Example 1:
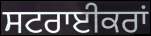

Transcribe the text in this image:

ਸਟਰਾਈਕਰਾਂ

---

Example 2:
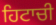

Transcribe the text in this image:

ਹਿਟਾਚੀ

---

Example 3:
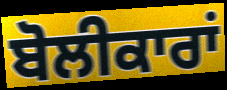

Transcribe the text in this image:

ਬੋਲੀਕਾਰਾਂ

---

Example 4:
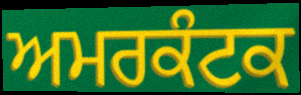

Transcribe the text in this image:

ਅਮਰਕੰਟਕ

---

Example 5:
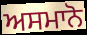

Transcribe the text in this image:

ਅਸਮਾਨੋ